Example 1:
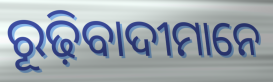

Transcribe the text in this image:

ରୂଢ଼ିବାଦୀମାନେ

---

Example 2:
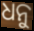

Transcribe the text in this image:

ଧନୁ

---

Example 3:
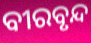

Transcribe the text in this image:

ବୀରବୃନ୍ଦ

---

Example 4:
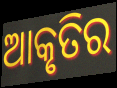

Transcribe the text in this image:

ଆକୃତିର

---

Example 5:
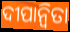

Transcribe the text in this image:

ଦୀପାନ୍ୱିତା